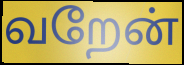
வறேன்